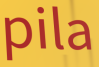
pila